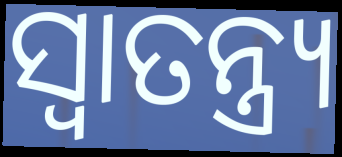
ସ୍ଵାତନ୍ତ୍ର୍ୟ